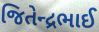
જિતેન્દ્રભાઈ